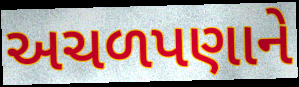
અચળપણાને